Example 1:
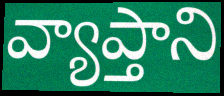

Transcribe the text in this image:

వ్యాప్తాని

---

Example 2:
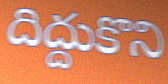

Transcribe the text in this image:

దిద్దుకొని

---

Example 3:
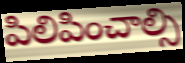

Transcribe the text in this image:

పిలిపించాల్సి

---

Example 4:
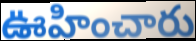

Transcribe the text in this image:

ఊహించారు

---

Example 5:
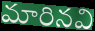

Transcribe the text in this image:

మారినవి